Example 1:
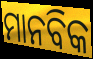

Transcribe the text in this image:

ମାନବିକ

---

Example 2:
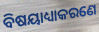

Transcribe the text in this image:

ବିଷୟାଧ୍ୟାକରଣେ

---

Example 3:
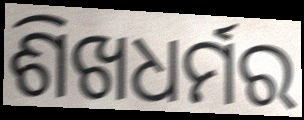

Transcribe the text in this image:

ଶିଖଧର୍ମର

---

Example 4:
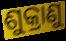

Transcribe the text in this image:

ଶୁକ୍ରାଣୁ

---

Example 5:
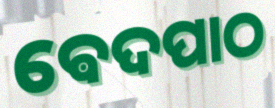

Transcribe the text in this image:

ଵେଦପାଠ